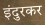
इंदुरकर